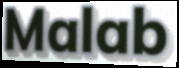
Malab